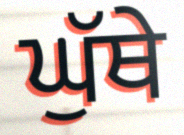
ਘੁੱਥੇ